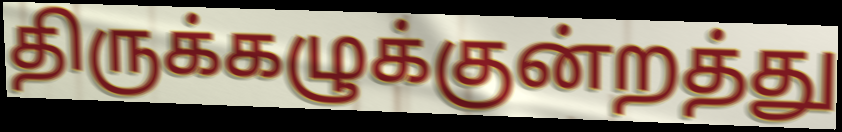
திருக்கழுக்குன்றத்து